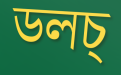
ডলচ্